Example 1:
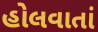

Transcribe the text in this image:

હોલવાતાં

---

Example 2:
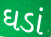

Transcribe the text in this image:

ઘડાં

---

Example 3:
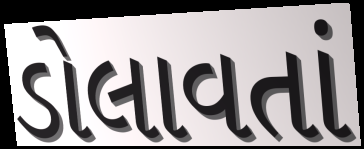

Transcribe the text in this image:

ડોલાવતાં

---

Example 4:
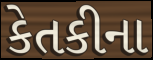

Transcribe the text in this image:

કેતકીના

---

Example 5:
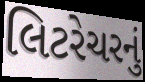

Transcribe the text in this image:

લિટરેચરનું